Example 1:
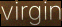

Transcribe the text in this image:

virgin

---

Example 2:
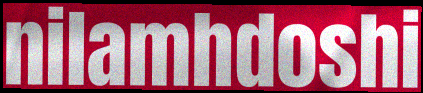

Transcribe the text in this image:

nilamhdoshi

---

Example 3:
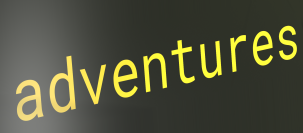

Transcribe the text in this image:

adventures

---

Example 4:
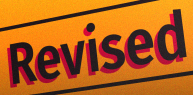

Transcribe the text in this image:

Revised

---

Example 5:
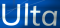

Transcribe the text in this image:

Ulta